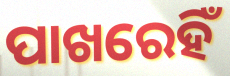
ପାଖରେହିଁ